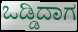
ಒಡ್ಡಿದಾಗ